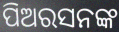
ପିଅରସନଙ୍କ